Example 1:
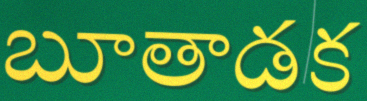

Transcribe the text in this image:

బూతాడక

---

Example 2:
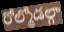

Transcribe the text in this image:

రోల్మోడల్గా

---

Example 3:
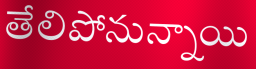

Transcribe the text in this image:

తేలిపోనున్నాయి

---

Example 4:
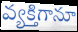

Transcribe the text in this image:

వ్యక్తిగానూ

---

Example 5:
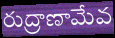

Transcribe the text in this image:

రుద్రాణామేవ